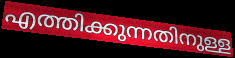
എത്തിക്കുന്നതിനുള്ള